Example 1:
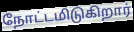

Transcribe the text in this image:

நோட்டமிடுகிறார்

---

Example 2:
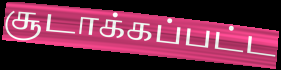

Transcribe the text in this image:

சூடாக்கப்பட்ட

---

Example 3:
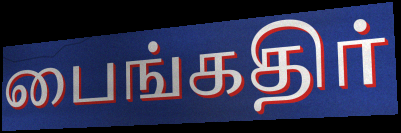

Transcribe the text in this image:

பைங்கதிர்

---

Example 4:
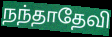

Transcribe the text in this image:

நந்தாதேவி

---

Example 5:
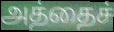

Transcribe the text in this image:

அத்தைச்